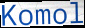
Komol